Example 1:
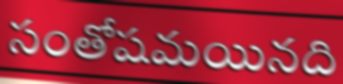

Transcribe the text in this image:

సంతోషమయినది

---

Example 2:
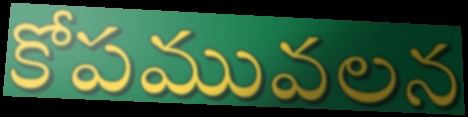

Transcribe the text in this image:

కోపమువలన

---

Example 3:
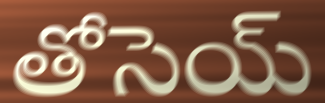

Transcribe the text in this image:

తోసెయ్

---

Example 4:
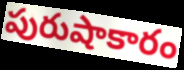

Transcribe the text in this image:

పురుషాకారం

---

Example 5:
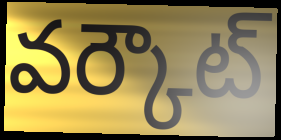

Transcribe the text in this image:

వర్కౌట్